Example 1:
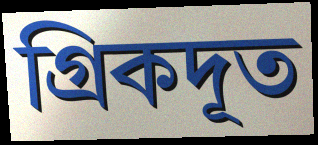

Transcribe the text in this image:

গ্রিকদূত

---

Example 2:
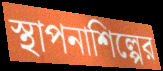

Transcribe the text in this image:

স্থাপনাশিল্পের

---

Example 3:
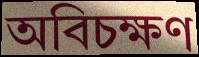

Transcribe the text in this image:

অবিচক্ষণ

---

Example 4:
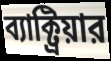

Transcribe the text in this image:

ব্যাক্ট্রিয়ার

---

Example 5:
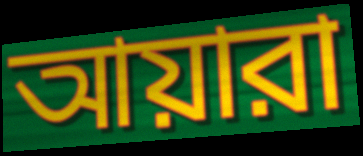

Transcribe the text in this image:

আয়ারা